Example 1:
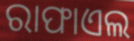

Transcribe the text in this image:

ରାଫାଏଲ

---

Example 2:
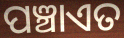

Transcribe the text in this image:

ପଞ୍ଚାଏତ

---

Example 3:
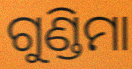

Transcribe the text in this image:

ଗୁଣ୍ଡିମା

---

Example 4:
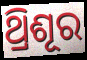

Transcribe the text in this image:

ଥ୍ରିଶୂର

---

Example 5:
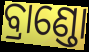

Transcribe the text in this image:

ବ୍ରାଣ୍ଡୋ